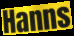
Hanns